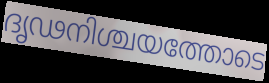
ദൃഢനിശ്ചയത്തോടെ